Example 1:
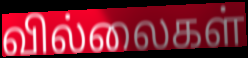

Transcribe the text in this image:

வில்லைகள்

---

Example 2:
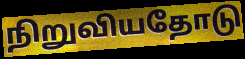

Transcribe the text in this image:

நிறுவியதோடு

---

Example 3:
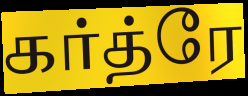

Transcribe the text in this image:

கர்த்ரே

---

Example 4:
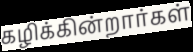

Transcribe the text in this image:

கழிக்கின்றார்கள்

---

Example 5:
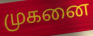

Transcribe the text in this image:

முகனை